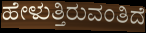
ಹೇಳುತ್ತಿರುವಂತಿದೆ